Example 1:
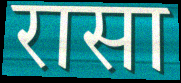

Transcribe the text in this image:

रासा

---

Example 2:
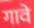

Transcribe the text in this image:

गावे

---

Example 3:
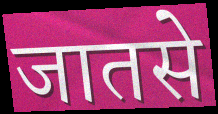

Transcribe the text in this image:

जातसे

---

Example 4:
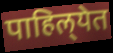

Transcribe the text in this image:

पाहिल्येत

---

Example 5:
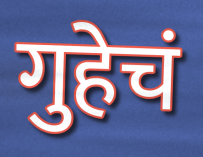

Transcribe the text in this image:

गुहेचं